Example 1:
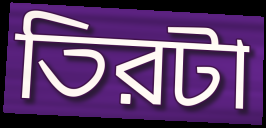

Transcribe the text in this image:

তিরটা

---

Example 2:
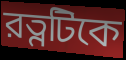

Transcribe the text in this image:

রত্নটিকে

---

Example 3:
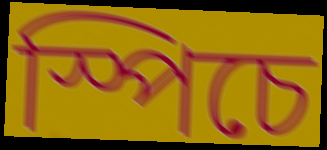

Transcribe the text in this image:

স্পিচে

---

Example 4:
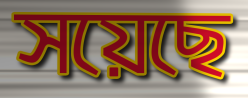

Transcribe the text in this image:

সয়েছে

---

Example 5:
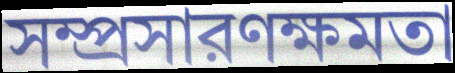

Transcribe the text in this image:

সম্প্রসারণক্ষমতা